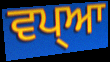
ਵਪ੍ਆ